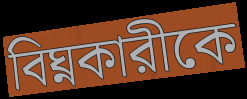
বিঘ্নকারীকে